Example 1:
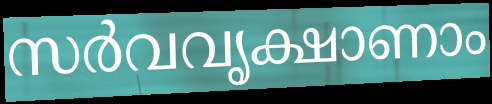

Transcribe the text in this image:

സർവവൃക്ഷാണാം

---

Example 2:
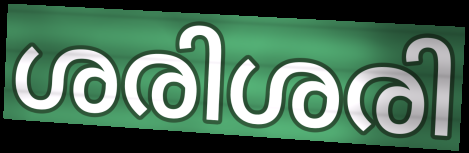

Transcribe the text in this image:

ശരിശരി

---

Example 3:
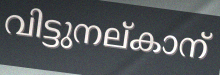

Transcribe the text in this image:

വിട്ടുനല്കാന്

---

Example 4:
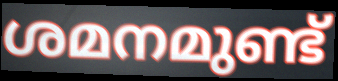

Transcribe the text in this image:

ശമനമുണ്ട്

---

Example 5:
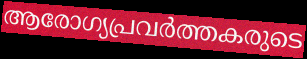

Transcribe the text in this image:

ആരോഗ്യപ്രവർത്തകരുടെ